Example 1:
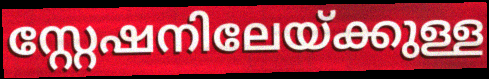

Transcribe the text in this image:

സ്റ്റേഷനിലേയ്ക്കുള്ള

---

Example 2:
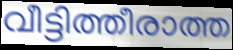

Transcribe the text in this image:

വീട്ടിത്തീരാത്ത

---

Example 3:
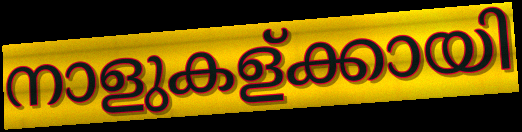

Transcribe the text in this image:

നാളുകള്ക്കായി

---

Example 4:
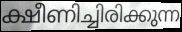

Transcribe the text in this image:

ക്ഷീണിച്ചിരിക്കുന്ന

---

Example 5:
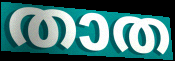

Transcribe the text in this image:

താത